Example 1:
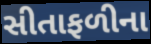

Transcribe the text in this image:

સીતાફળીના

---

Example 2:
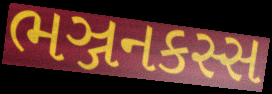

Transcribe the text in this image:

ભઞ્જનકસ્સ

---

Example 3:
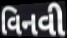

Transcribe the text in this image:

વિનવી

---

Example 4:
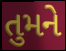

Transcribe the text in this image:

તુમને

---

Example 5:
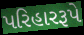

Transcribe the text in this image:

પરિહારરૂપે